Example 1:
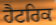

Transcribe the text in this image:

ਹੈਟਰਿਕ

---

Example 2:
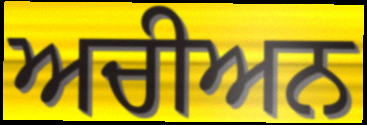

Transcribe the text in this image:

ਅਚੀਅਨ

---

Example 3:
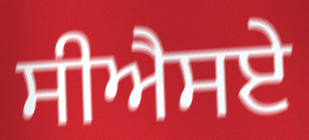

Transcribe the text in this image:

ਸੀਐਸਏ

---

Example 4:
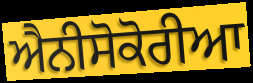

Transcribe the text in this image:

ਐਨੀਸੋਕੋਰੀਆ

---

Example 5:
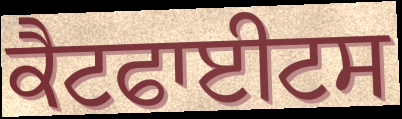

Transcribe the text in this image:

ਕੈਟਫਾਈਟਸ